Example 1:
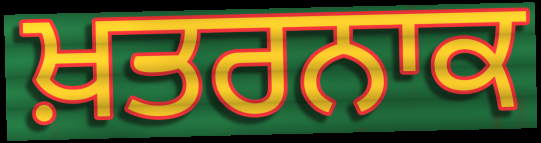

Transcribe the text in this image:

ਖ਼ਤਰਨਾਕ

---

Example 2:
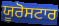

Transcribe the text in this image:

ਯੂਰੋਸਟਾਰ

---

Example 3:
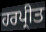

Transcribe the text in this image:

ਹਰਪ੍ਰੀਤ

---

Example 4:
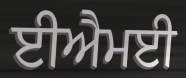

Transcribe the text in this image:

ਈਐਮਈ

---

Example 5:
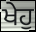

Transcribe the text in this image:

ਖੇਹੁ